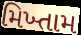
મિખ્તામ